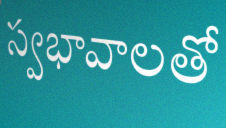
స్వభావాలతో